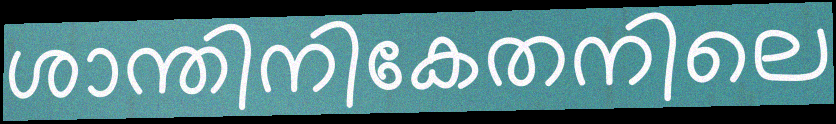
ശാന്തിനികേതനിലെ